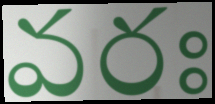
వరః